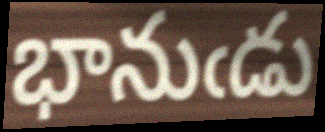
భానుఁడు